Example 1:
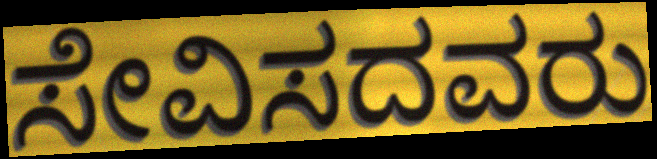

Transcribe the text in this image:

ಸೇವಿಸದವರು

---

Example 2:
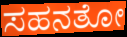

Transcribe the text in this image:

ಸಹನತೋ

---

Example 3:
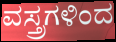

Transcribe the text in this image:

ವಸ್ತ್ರಗಳಿಂದ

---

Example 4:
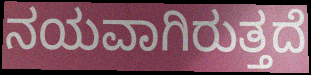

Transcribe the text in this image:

ನಯವಾಗಿರುತ್ತದೆ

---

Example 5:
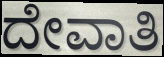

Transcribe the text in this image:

ದೇವಾತಿ